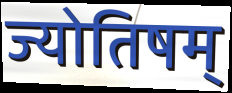
ज्योतिषम्